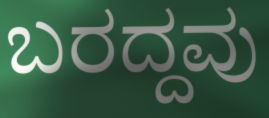
ಬರದ್ದವು